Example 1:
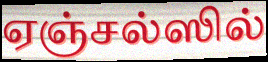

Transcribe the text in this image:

ஏஞ்சல்ஸில்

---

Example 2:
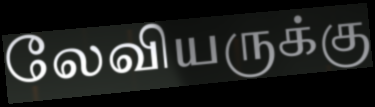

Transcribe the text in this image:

லேவியருக்கு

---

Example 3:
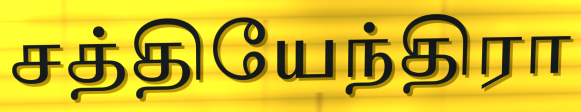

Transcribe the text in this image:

சத்தியேந்திரா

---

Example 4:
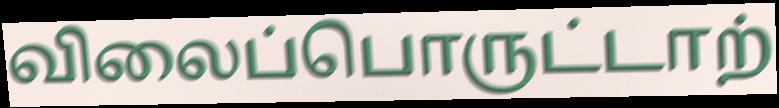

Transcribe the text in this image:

விலைப்பொருட்டாற்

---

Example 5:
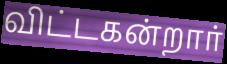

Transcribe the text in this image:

விட்டகன்றார்